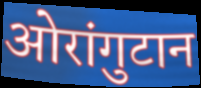
ओरांगुटान